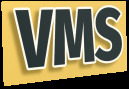
VMS